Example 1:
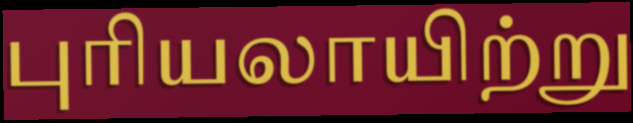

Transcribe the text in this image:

புரியலாயிற்று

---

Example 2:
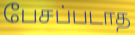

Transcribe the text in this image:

பேசப்படாத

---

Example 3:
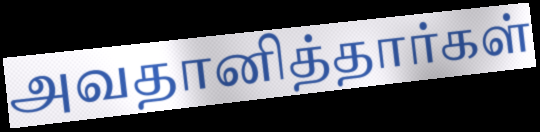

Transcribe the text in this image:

அவதானித்தார்கள்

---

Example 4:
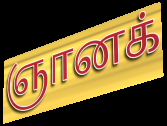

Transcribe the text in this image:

ஞானக்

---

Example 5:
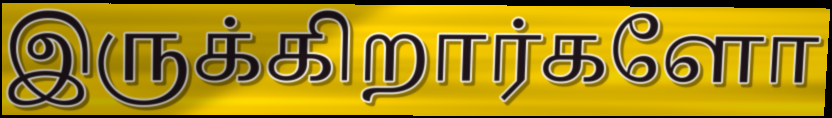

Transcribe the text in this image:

இருக்கிறார்களோ